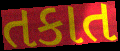
તકાત